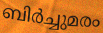
ബിർച്ചുമരം